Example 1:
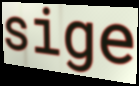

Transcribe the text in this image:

sige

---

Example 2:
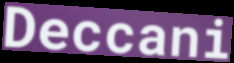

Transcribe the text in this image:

Deccani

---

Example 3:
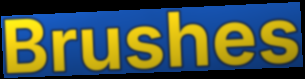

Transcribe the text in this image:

Brushes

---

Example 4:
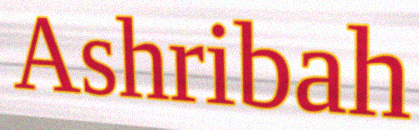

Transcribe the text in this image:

Ashribah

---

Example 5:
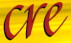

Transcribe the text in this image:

cre